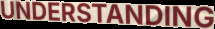
UNDERSTANDING